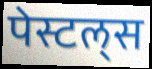
पेस्टल्स